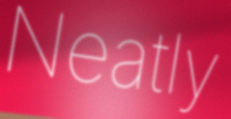
Neatly